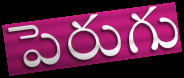
పెరుగు